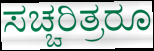
ಸಚ್ಚರಿತ್ರರೂ